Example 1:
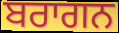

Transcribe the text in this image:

ਬਰਾਗਨ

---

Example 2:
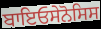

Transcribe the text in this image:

ਬਾਇਓਸੇਨੋਸਿਸ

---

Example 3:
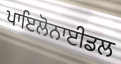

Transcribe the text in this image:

ਪਾਇਲੋਨਾਈਡਲ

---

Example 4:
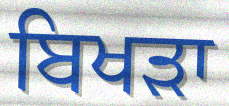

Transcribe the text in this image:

ਬਿਖੜਾ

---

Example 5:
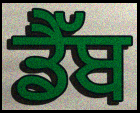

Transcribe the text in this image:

ਡੈੱਬ